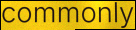
commonly